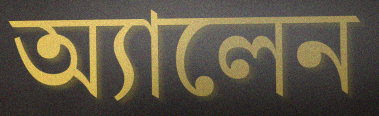
অ্যালেন